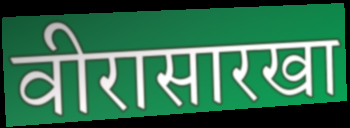
वीरासारखा